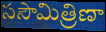
ససౌమిత్రిణా